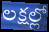
లక్షల్లో